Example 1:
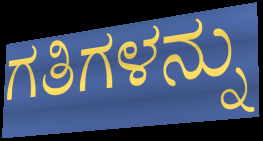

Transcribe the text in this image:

ಗತಿಗಳನ್ನು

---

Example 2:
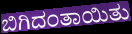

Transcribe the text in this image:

ಬಿಗಿದಂತಾಯಿತು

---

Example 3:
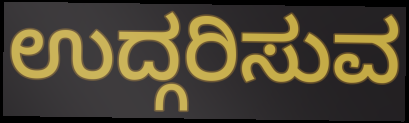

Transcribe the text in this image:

ಉದ್ಗರಿಸುವ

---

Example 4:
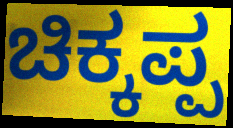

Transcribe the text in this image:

ಚಿಕ್ಕಪ್ಪ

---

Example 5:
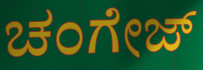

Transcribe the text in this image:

ಚಂಗೇಜ್